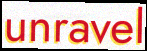
unravel